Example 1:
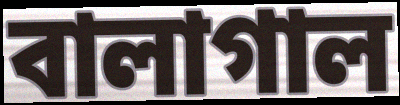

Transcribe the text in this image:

বালাগাল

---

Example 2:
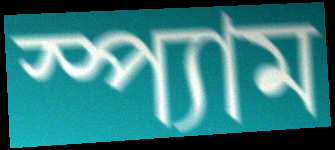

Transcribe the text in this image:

স্প্যাম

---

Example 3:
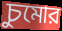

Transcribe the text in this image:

চুমোর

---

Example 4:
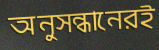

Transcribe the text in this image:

অনুসন্ধানেরই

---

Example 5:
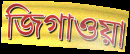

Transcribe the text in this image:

জিগাওয়া